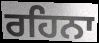
ਰਹਿਨਾ